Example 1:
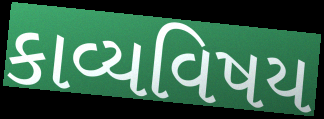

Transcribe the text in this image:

કાવ્યવિષય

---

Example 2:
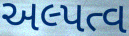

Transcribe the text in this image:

અલ્પત્વ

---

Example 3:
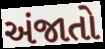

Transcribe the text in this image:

અંજાતો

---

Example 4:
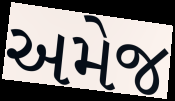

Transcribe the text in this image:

અમેજ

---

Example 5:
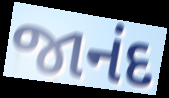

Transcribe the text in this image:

જાનંદ